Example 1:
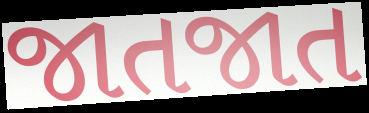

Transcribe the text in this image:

જાતજાત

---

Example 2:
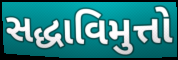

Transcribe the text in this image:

સદ્ધાવિમુત્તો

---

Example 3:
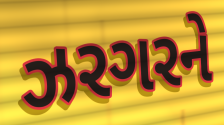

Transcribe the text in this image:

ઝરગરને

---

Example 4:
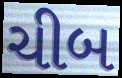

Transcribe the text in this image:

ચીબ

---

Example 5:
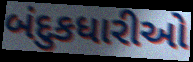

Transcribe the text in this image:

બંદુકધારીઓ